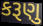
કરૂણુ